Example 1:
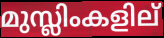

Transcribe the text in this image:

മുസ്ലിംകളില്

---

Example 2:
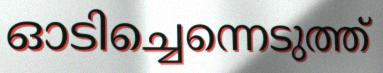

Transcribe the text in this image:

ഓടിച്ചെന്നെടുത്ത്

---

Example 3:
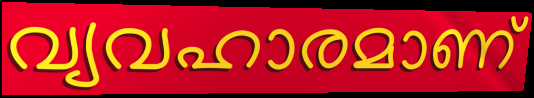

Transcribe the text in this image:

വ്യവഹാരമാണ്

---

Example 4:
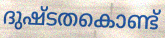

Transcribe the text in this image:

ദുഷ്ടതകൊണ്ട്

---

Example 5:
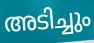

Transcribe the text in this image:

അടിച്ചും